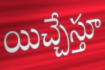
యిచ్చేస్తూ